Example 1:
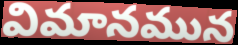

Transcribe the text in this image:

విమానమున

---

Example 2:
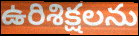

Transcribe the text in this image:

ఉరిశిక్షలను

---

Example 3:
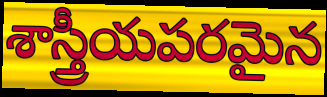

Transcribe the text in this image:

శాస్త్రీయపరమైన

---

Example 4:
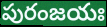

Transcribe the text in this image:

పురంజయః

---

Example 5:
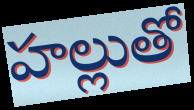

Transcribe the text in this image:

హల్లుతో